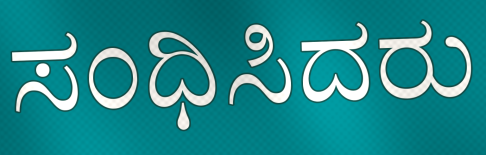
ಸಂಧಿಸಿದರು